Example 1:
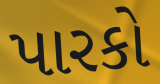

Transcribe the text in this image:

પારકો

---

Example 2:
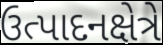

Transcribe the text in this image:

ઉત્પાદનક્ષેત્રે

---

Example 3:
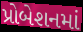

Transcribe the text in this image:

પ્રોબેશનમાં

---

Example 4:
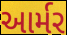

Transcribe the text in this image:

આર્મર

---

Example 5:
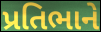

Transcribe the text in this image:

પ્રતિભાને